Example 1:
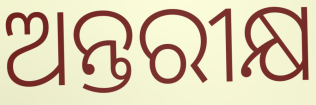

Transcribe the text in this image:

ଅନ୍ତରୀକ୍ଷ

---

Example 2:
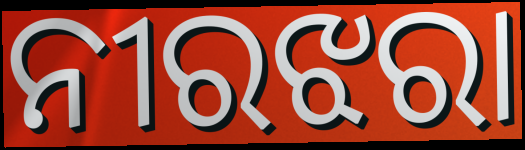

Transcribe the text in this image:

ନୀରଝରା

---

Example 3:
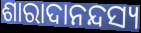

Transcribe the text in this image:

ଶାରାଦାନନ୍ଦସ୍ୟ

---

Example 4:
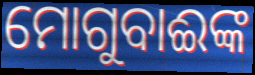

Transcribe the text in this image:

ମୋଗୁବାଈଙ୍କ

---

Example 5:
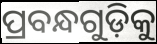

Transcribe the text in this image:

ପ୍ରବନ୍ଧଗୁଡ଼ିକୁ